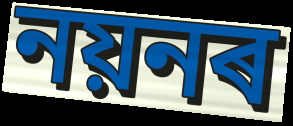
নয়নৰ